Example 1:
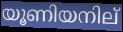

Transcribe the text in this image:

യൂണിയനില്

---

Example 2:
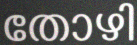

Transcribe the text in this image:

തോഴി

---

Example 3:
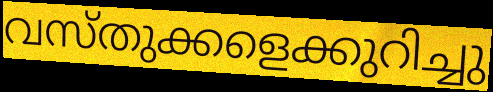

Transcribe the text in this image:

വസ്തുക്കളെക്കുറിച്ചു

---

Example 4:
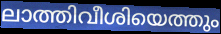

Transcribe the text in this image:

ലാത്തിവീശിയെത്തും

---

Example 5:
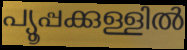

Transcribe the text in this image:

പ്യൂപ്പക്കുള്ളിൽ